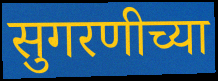
सुगरणीच्या